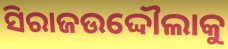
ସିରାଜଉଦ୍ଦୌଲାକୁ